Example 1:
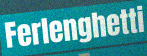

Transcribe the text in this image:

Ferlenghetti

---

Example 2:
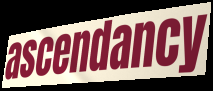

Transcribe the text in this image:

ascendancy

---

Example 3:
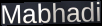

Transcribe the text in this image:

Mabhadi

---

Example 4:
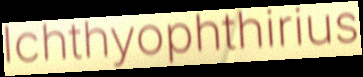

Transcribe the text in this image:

Ichthyophthirius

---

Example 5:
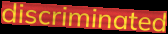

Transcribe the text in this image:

discriminated